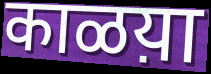
काळय़ा